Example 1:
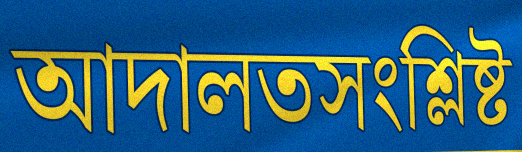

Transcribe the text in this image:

আদালতসংশ্লিষ্ট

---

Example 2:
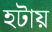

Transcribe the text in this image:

হটায়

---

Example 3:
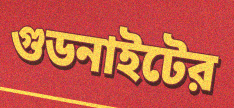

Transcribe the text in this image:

গুডনাইটের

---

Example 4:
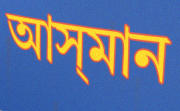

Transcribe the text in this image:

আস্‌মান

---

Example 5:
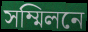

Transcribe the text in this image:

সম্মিলনে